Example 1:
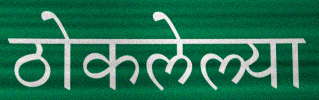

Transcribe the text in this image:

ठोकलेल्या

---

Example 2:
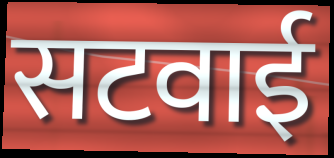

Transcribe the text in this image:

सटवाई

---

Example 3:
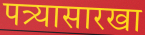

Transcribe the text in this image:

पत्र्यासारखा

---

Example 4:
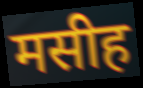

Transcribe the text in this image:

मसीह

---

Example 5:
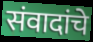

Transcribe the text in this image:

संवादांचे